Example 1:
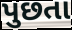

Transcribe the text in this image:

પુછતા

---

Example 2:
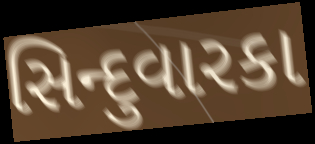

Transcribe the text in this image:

સિન્દુવારકા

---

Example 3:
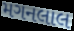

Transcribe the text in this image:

મગનલાલ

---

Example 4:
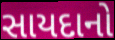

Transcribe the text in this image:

સાયદાનો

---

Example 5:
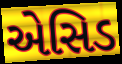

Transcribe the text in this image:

એસિડ